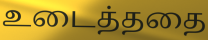
உடைத்ததை